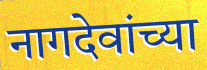
नागदेवांच्या